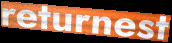
returnest